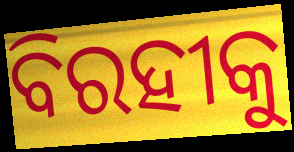
ବିରହୀକୁ